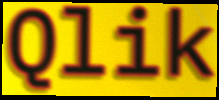
Qlik